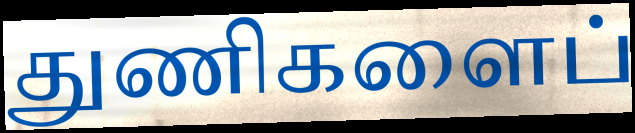
துணிகளைப்